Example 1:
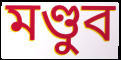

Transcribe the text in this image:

মণ্ডুব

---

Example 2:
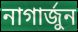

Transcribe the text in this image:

নাগাৰ্জুন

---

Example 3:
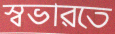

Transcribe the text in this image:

স্বভাৱতে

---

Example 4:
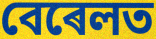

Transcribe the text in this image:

বেৰেলত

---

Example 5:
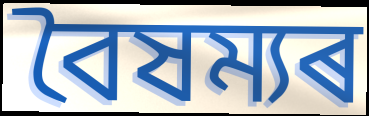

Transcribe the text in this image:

বৈষম্যৰ